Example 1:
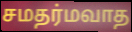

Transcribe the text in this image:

சமதர்மவாத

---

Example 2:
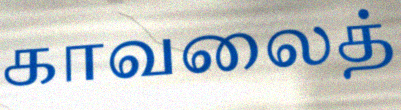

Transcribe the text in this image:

காவலைத்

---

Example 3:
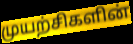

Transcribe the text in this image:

முயற்சிகளின்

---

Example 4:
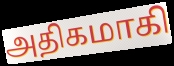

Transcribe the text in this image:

அதிகமாகி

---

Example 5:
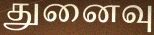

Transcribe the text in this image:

துனைவு